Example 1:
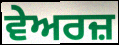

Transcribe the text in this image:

ਵੇਅਰਜ਼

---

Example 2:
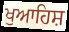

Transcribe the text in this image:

ਖੁਆਹਿਸ਼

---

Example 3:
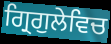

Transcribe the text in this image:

ਗ੍ਰਿਗੁਲੇਵਿਚ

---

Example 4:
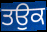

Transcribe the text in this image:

ਤਉਕ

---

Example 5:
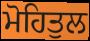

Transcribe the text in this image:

ਮੋਹਿਤੁਲ